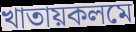
খাতায়কলমে